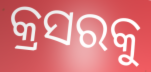
କ୍ରସରକୁ